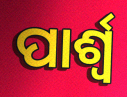
ପାର୍ଶ୍ୱ